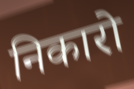
निकारो